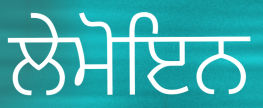
ਲੇਮੋਇਨ